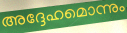
അദ്ദേഹമൊന്നും